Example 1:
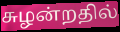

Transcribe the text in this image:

சுழன்றதில்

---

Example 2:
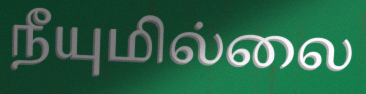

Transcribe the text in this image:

நீயுமில்லை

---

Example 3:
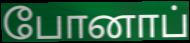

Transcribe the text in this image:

போனாப்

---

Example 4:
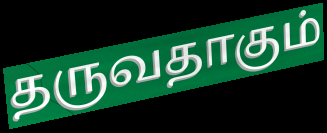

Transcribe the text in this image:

தருவதாகும்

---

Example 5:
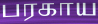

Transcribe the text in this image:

பரகாய